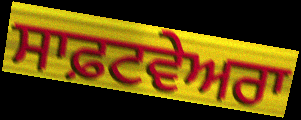
ਸਾਫ਼ਟਵੇਅਰਾ